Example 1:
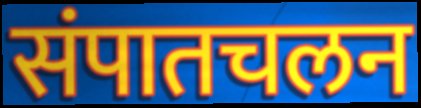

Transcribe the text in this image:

संपातचलन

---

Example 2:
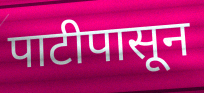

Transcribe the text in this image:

पाटीपासून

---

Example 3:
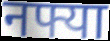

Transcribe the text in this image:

नफ्या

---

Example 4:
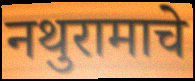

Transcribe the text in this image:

नथुरामाचे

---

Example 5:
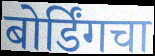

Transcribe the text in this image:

बोर्डिंगचा